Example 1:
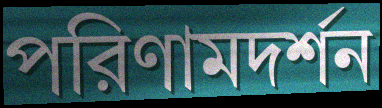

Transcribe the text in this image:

পরিণামদর্শন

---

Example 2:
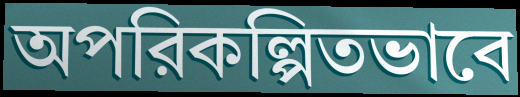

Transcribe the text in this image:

অপরিকল্পিতভাবে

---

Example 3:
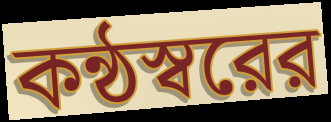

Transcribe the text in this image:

কন্ঠস্বরের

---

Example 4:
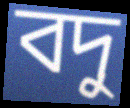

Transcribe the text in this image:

বদু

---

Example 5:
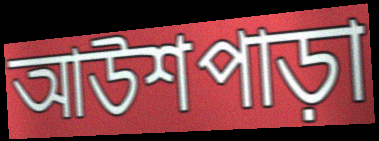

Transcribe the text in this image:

আউশপাড়া